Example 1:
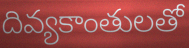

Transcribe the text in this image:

దివ్యకాంతులతో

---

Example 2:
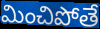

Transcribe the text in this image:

మించిపోతే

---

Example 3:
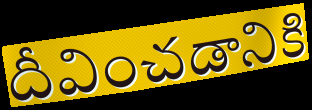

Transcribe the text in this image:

దీవించడానికి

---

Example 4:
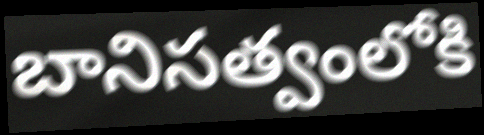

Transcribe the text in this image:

బానిసత్వంలోకి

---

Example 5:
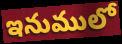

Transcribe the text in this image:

ఇనుములో